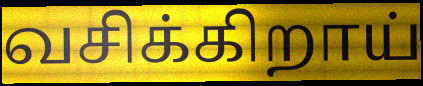
வசிக்கிறாய்